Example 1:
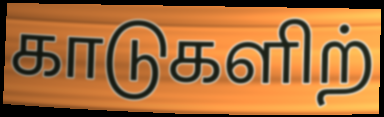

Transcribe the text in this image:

காடுகளிற்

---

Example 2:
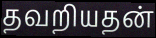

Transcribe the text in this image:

தவறியதன்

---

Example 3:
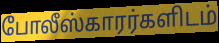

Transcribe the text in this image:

போலீஸ்காரர்களிடம்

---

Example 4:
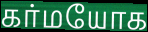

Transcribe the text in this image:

கர்மயோக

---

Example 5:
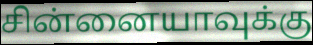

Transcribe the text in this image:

சின்னையாவுக்கு